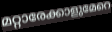
മറ്റാരേക്കാളുമേറെ